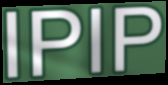
IPIP